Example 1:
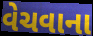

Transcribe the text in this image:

વેચવાના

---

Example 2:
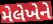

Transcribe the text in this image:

મેલેખેને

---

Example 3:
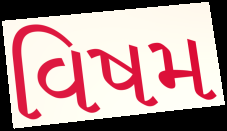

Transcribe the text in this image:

વિષમ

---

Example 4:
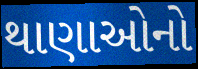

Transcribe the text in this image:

થાણાઓનો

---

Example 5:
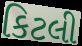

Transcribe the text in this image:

કિટલી